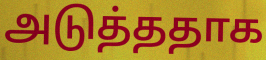
அடுத்ததாக